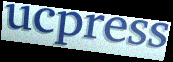
ucpress